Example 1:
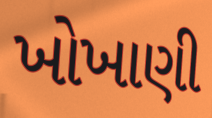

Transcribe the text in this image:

ખોખાણી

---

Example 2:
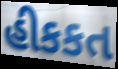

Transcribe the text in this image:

હીકકત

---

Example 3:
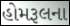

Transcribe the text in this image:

હોમરૂલના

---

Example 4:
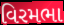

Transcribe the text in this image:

વિરમભા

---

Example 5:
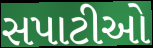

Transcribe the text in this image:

સપાટીઓ